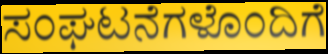
ಸಂಘಟನೆಗಳೊಂದಿಗೆ